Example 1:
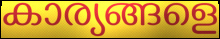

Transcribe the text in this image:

കാര്യങ്ങളെ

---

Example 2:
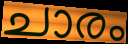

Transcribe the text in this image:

ചാരം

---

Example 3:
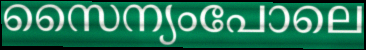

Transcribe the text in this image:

സൈന്യംപോലെ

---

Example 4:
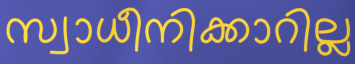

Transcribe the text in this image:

സ്വാധീനിക്കാറില്ല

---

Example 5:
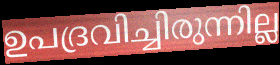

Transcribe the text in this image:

ഉപദ്രവിച്ചിരുന്നില്ല